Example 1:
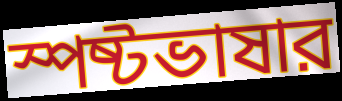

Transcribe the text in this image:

স্পষ্টভাষার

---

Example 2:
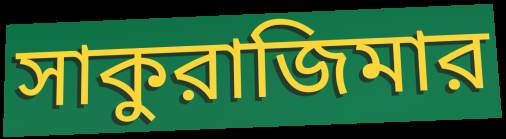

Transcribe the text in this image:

সাকুরাজিমার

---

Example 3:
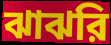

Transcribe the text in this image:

ঝাঝরি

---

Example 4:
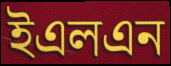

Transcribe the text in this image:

ইএলএন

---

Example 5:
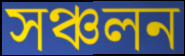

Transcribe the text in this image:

সঞ্চলন